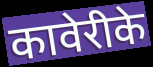
कावेरीके